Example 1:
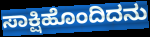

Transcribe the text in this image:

ಸಾಕ್ಷಿಹೊಂದಿದನು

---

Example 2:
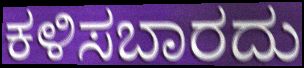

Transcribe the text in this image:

ಕಳಿಸಬಾರದು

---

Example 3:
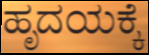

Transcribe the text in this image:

ಹೃದಯಕ್ಕೆ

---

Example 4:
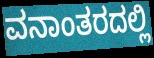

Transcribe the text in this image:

ವನಾಂತರದಲ್ಲಿ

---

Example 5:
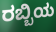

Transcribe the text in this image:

ರಬ್ಬಿಯ